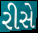
રીસે